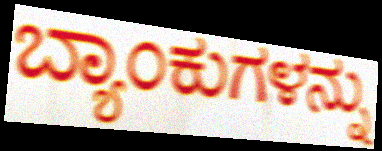
ಬ್ಯಾಂಕುಗಳನ್ನು